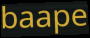
baape